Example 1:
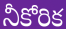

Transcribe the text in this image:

నీకోరిక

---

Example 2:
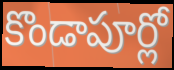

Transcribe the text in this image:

కొండాపూర్లో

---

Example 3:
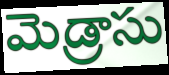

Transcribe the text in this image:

మెడ్రాసు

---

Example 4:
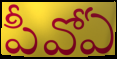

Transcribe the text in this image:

పీవోఏ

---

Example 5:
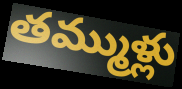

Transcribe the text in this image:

తమ్ముళ్లు